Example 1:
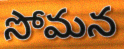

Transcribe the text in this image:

సోమన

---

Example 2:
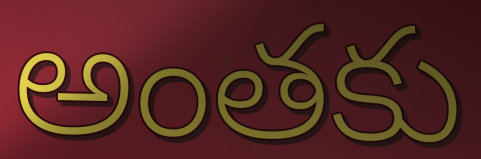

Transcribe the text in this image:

అంతకు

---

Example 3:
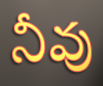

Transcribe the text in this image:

నీవు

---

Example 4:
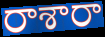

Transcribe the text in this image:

రాశారా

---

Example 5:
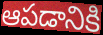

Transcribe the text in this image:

ఆపడానికి